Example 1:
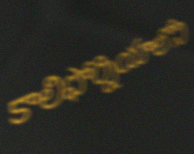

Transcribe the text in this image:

కాలిఫోర్నియాలోని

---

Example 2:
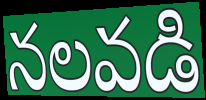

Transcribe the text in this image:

నలవడి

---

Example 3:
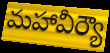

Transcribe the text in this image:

మహావీర్యౌ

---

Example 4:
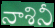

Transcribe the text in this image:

నాశినీ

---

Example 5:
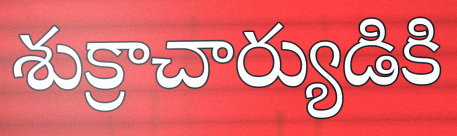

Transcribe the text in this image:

శుక్రాచార్యుడికి